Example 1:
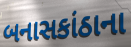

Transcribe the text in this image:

બનાસકાંઠાના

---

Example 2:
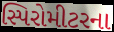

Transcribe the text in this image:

સ્પિરોમીટરના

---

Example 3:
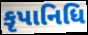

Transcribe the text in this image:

કૃપાનિધિ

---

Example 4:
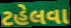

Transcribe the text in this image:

ટહેલવા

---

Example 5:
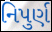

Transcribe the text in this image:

નિપુર્ણ